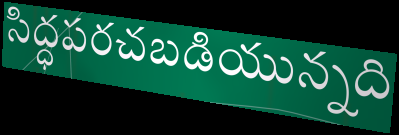
సిద్ధపరచబడియున్నది